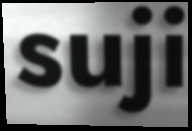
suji